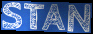
STAN